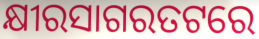
କ୍ଷୀରସାଗରତଟରେ